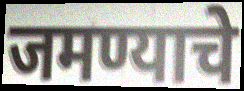
जमण्याचे